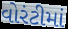
વોરંટીમાં